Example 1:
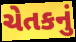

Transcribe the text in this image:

ચેતકનું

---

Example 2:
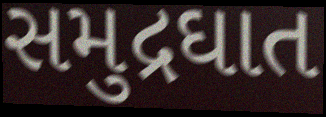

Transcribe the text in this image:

સમુદ્રઘાત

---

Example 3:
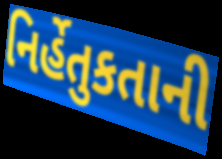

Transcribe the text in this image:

નિર્હેતુકતાની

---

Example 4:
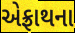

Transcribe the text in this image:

એફ્રાથના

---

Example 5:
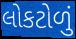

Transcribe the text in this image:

લોકટોળું